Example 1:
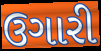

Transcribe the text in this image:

ઉગારી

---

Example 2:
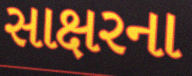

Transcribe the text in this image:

સાક્ષરના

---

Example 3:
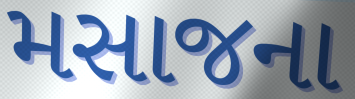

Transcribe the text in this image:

મસાજના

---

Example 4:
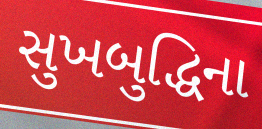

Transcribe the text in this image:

સુખબુદ્ધિના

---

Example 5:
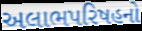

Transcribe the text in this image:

અલાભપરિષહનો